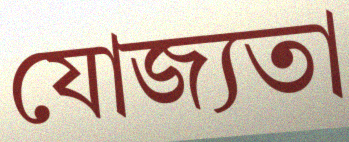
যোজ্যতা